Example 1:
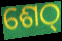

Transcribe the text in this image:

ଶେଠ୍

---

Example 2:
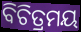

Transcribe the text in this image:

ବିଚିତ୍ରମୟ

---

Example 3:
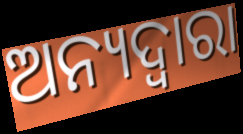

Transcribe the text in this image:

ଅନ୍ୟଦ୍ଵାରା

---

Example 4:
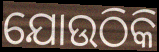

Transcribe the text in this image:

ଯୋଉଠିକି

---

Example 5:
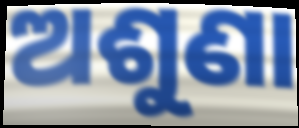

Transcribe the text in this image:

ଅଶୁଣା